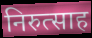
निरुत्साह